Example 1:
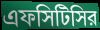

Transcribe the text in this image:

এফসিটিসির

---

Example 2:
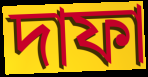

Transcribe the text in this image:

দাফা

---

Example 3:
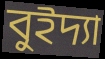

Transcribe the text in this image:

বুইদ্যা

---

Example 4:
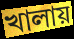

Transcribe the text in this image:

খালায়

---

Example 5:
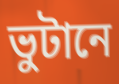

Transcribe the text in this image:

ভুটানে